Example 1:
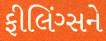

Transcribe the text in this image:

ફીલિંગ્સને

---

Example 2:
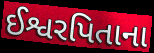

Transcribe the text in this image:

ઈશ્વરપિતાના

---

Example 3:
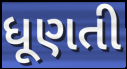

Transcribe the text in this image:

ધૂણતી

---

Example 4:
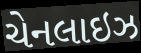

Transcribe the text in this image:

ચેનલાઇઝ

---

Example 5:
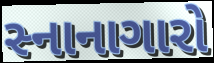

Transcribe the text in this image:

સ્નાનાગારો